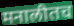
मनालीतच